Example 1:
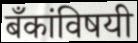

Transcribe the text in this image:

बँकांविषयी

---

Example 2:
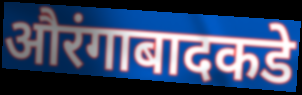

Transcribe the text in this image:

औरंगाबादकडे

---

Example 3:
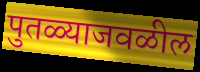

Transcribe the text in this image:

पुतळ्याजवळील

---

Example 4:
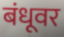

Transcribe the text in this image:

बंधूवर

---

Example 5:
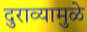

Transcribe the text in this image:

दुराव्यामुळे